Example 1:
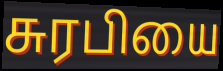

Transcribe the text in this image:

சுரபியை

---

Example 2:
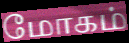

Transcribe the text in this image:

மோகம்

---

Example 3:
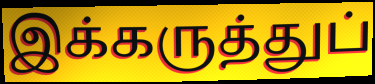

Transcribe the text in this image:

இக்கருத்துப்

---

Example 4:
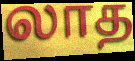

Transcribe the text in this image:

லாத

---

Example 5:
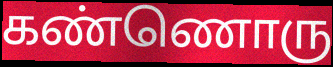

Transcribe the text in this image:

கண்ணொரு